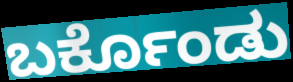
ಬರ್ಕೊಂಡು